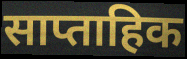
साप्ताहिक